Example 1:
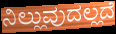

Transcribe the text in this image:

ನಿಲ್ಲುವುದಲ್ಲದೆ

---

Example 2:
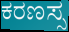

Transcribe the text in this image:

ಕರಣಸ್ಸ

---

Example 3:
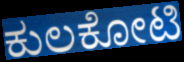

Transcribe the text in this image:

ಕುಲಕೋಟಿ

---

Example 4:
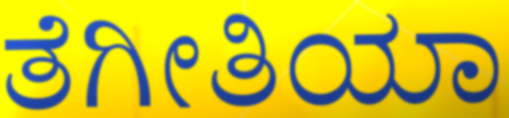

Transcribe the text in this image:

ತೆಗೀತಿಯಾ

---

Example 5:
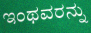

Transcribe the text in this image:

ಇಂಥವರನ್ನು